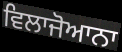
ਵਿਲਾਜੋਆਨਾ